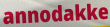
annodakke